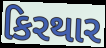
કિરથાર